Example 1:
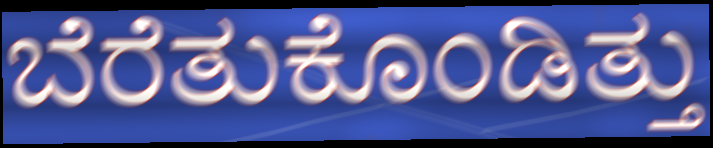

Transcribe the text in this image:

ಬೆರೆತುಕೊಂಡಿತ್ತು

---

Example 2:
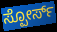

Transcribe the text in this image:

ಸ್ಪೋರ್ಸ್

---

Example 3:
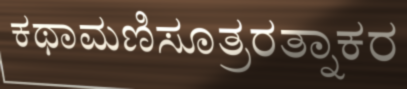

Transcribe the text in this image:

ಕಥಾಮಣಿಸೂತ್ರರತ್ನಾಕರ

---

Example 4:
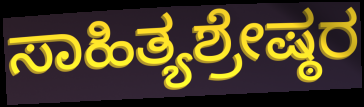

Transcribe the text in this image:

ಸಾಹಿತ್ಯಶ್ರೇಷ್ಠರ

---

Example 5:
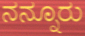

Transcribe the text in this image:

ನನ್ನೂರು